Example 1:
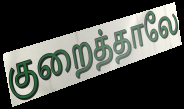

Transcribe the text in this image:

குறைத்தாலே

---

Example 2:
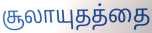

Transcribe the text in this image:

சூலாயுதத்தை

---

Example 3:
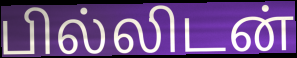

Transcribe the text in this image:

பில்லிடன்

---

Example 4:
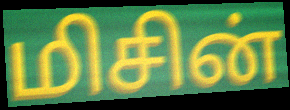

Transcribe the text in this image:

மிசின்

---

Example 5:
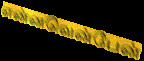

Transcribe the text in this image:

என்னவென்பேன்